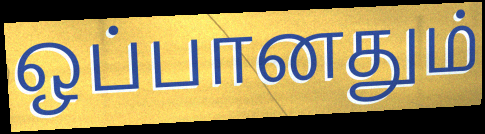
ஒப்பானதும்